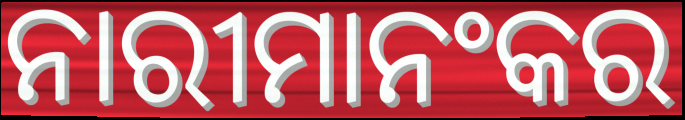
ନାରୀମାନଂକର